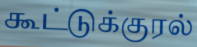
கூட்டுக்குரல்